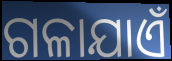
ଗଳାଯାଏଁ